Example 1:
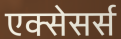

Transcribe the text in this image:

एक्सेसर्स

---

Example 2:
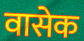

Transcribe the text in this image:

वासेक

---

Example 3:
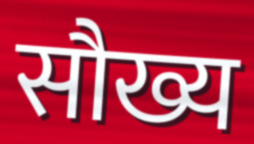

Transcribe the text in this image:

सौख्य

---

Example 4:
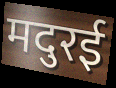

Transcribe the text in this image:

मदुरई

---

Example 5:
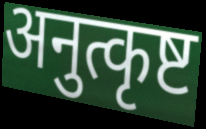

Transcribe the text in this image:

अनुत्कृष्ट